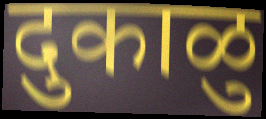
दुकाळु